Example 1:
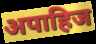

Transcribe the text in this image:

अपाहिज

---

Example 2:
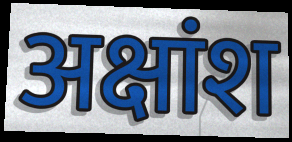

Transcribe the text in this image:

अक्षांश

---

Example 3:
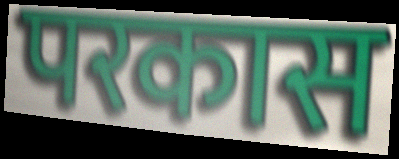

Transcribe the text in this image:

परकास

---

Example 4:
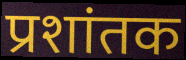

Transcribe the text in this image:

प्रशांतक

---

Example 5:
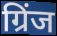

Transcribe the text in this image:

ग्रिंज